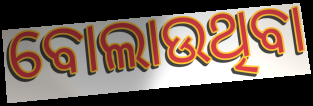
ବୋଲାଉଥିବା